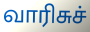
வாரிசுச்